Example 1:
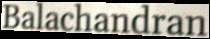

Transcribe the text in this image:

Balachandran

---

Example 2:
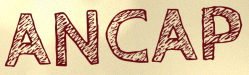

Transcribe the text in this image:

ANCAP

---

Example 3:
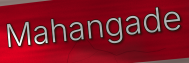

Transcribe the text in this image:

Mahangade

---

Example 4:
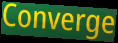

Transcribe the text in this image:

Converge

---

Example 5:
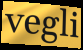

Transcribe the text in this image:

vegli